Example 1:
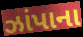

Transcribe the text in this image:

ઝાંપાના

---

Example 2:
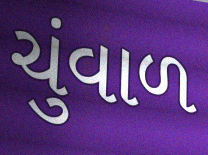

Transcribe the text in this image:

ચુંવાળ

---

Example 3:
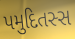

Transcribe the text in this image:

પમુદિતસ્સ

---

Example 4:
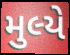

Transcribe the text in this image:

મુલ્યે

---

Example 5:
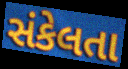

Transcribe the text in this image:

સંકેલતા